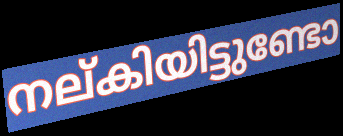
നല്കിയിട്ടുണ്ടോ